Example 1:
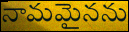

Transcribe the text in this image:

నామమైనను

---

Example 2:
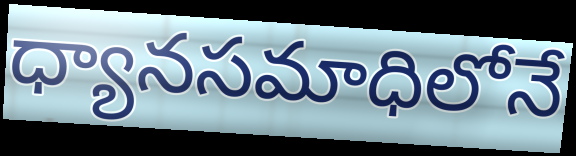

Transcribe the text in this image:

ధ్యానసమాధిలోనే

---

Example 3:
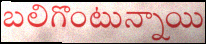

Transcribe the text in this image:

బలిగొంటున్నాయి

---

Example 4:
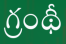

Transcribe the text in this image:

గ్రంథీ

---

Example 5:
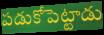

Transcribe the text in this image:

పడుకోపెట్టాడు